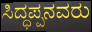
ಸಿದ್ಧಪ್ಪನವರು